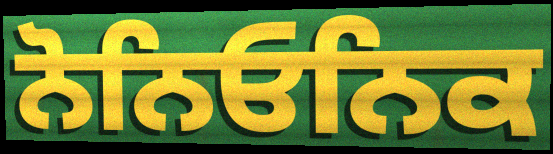
ਨੋਨਿਓਨਿਕ